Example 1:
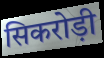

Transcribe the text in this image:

सिकरोड़ी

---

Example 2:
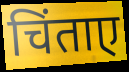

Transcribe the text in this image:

चिंताए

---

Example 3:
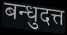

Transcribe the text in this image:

बन्धुदत्त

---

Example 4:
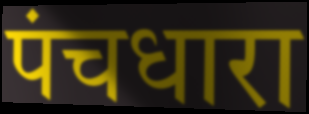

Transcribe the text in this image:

पंचधारा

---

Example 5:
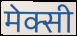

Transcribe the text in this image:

मेक्सी